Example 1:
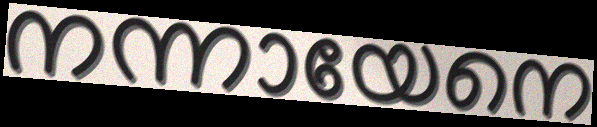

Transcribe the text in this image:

നന്നായേനെ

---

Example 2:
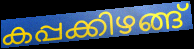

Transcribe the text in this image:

കപ്പക്കിഴങ്ങ്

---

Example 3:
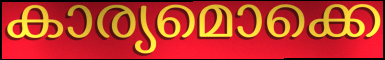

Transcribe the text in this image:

കാര്യമൊക്കെ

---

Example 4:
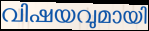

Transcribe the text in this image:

വിഷയവുമായി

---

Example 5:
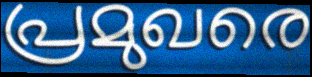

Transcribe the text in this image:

പ്രമുഖരെ